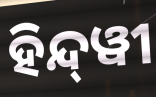
ହିନ୍ଦ୍‍ୱୀ